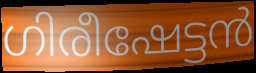
ഗിരീഷേട്ടൻ